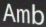
Amb